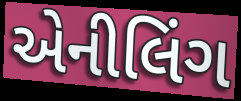
એનીલિંગ